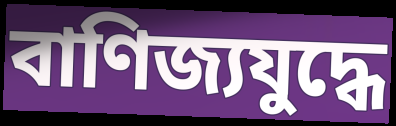
বাণিজ্যযুদ্ধে